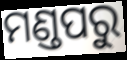
ମଣ୍ଡପରୁ